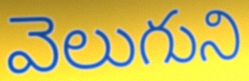
వెలుగుని